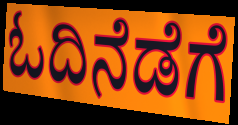
ಓದಿನೆಡೆಗೆ